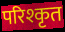
परिश्कृत